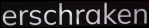
erschraken